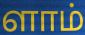
ளாம்